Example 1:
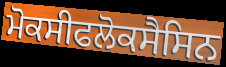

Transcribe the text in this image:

ਮੋਕਸੀਫਲੋਕਸੈਸਿਨ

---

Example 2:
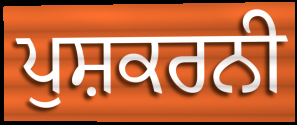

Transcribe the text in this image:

ਪੁਸ਼ਕਰਨੀ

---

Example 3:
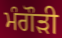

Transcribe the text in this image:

ਮੰਗੌੜੀ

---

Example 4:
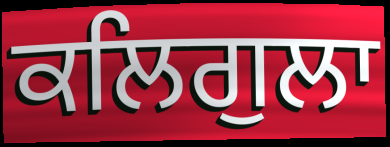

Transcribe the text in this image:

ਕਲਿਗੁਲਾ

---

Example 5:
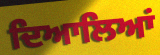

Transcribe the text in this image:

ਦਿਆਲਿਆਂ